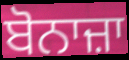
ਬੋਨਾਜ਼ਾ